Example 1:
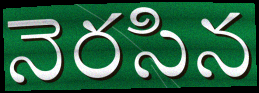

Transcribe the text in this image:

నెరసిన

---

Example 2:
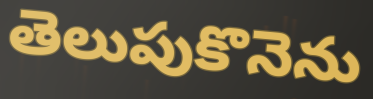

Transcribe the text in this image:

తెలుపుకొనెను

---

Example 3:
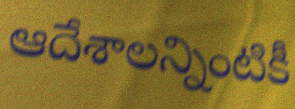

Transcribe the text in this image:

ఆదేశాలన్నింటికీ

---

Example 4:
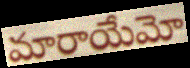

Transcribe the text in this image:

మారాయేమో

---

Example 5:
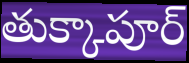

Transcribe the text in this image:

తుక్కాపూర్